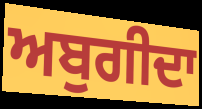
ਅਬੁਗੀਦਾ